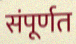
संपूर्णत